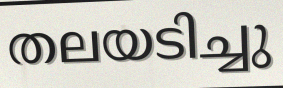
തലയടിച്ചു